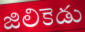
జిలికెడు